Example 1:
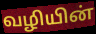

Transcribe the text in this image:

வழியின்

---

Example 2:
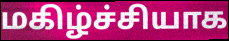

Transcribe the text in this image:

மகிழ்ச்சியாக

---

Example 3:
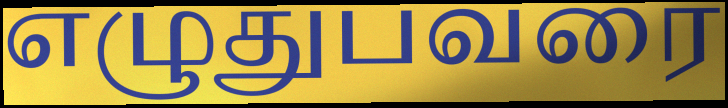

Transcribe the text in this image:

எழுதுபவரை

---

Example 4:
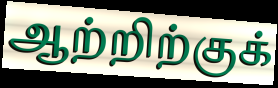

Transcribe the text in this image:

ஆற்றிற்குக்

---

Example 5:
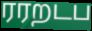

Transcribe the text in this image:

ரரறடப